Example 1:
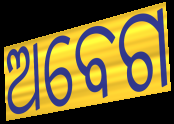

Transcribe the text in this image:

ଅବେଗ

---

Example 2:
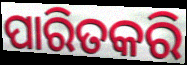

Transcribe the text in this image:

ପାରିତକରି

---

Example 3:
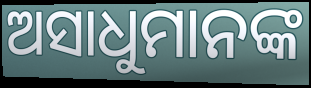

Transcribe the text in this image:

ଅସାଧୁମାନଙ୍କ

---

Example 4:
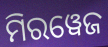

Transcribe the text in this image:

ମିରୱେଜ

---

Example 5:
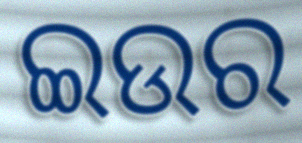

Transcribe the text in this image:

ଇଉର